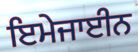
ਇਮੇਜਾਈਨ